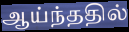
ஆய்ந்ததில்